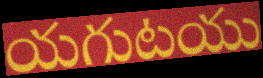
యగుటయు